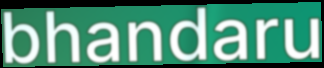
bhandaru